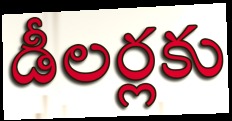
డీలర్లకు